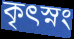
কৃৎস্নং